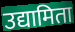
उद्यामिता